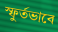
স্ফুর্তভাবে